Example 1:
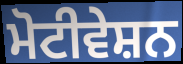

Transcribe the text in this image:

ਮੋਟੀਵੇਸ਼ਨ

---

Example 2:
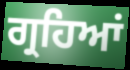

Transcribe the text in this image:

ਗ੍ਰਹਿਆਂ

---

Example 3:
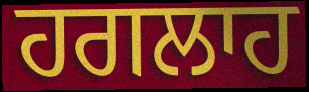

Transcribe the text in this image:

ਹਗਲਾਹ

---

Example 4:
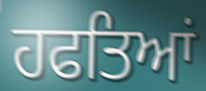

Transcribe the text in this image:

ਹਫਤਿਆਂ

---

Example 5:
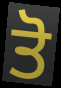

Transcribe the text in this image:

ਤੋ